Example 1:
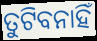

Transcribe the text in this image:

ତୁଟିବନାହିଁ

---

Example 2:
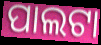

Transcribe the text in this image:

ପାଲଟା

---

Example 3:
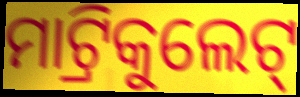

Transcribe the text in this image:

ମାଟ୍ରିକୁଲେଟ୍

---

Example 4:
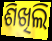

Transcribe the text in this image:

ଶିଖିଲି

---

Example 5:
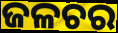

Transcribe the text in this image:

ଜଳଚର